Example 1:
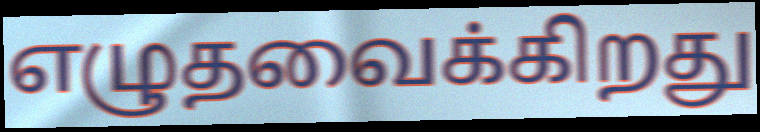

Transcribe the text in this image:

எழுதவைக்கிறது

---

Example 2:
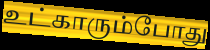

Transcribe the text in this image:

உட்காரும்போது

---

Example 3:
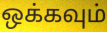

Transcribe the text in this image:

ஒக்கவும்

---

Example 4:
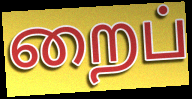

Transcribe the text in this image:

றைப்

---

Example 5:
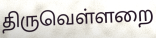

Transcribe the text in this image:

திருவெள்ளறை